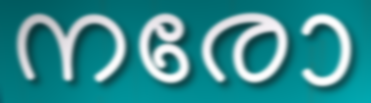
നരോ